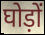
घोड़ों